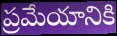
ప్రమేయానికి